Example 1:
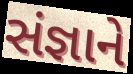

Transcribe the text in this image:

સંજ્ઞાને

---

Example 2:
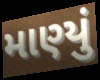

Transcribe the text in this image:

માણ્યું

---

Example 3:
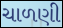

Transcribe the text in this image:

ચાળણી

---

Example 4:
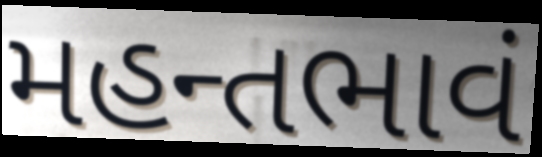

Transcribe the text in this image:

મહન્તભાવં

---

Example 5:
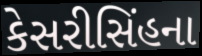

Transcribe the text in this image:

કેસરીસિંહના